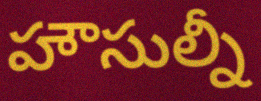
హౌసుల్నీ